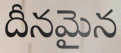
దీనమైన